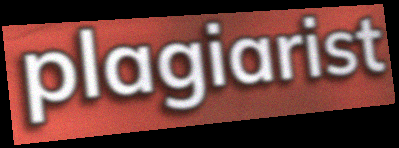
plagiarist